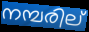
നമ്പരില്